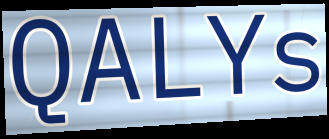
QALYs